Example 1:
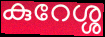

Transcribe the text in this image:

കുറേശ്ശ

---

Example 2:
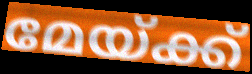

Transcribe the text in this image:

മേയ്ക്ക്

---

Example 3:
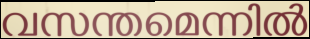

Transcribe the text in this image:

വസന്തമെന്നിൽ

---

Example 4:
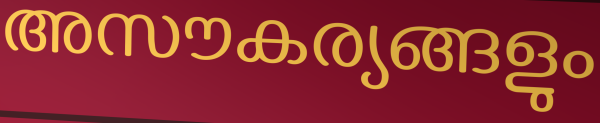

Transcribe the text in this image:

അസൗകര്യങ്ങളും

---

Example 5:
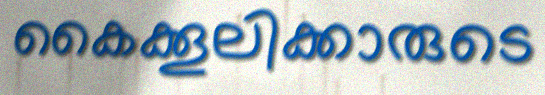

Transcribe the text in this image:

കൈക്കൂലിക്കാരുടെ